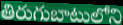
తిరుగుబాటులోని